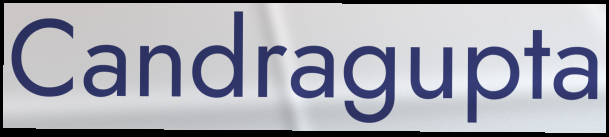
Candragupta